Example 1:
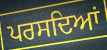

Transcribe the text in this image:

ਪਰਸਦਿਆਂ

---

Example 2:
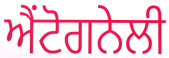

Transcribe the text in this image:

ਐਂਟੋਗਨੇਲੀ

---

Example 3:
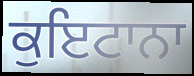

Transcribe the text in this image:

ਕੁਇਟਾਨਾ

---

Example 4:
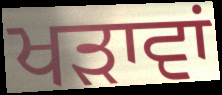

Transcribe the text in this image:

ਖੜਾਵਾਂ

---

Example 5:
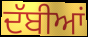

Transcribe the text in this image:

ਦੱਬੀਆਂ